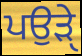
ਪਉੜੑੇ